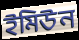
ইমিউন